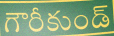
గౌరీకుండ్